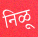
निळू